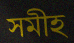
সমীহ